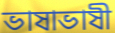
ভাষাভাষী